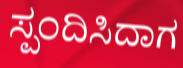
ಸ್ಪಂದಿಸಿದಾಗ